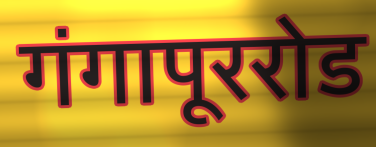
गंगापूररोड